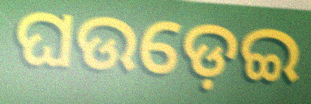
ଘଉଡ଼େଇ